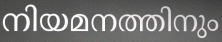
നിയമനത്തിനും